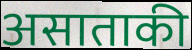
असाताकी